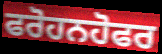
ਫਰੋਹਨਹੋਫਰ